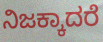
ನಿಜಕ್ಕಾದರೆ